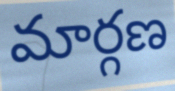
మార్గణ